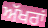
ਅੱਖਰਾਂ